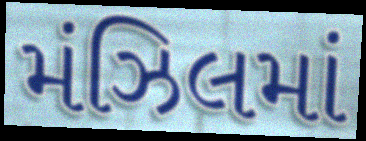
મંઝિલમાં